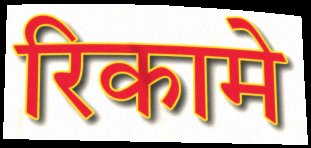
रिकामे